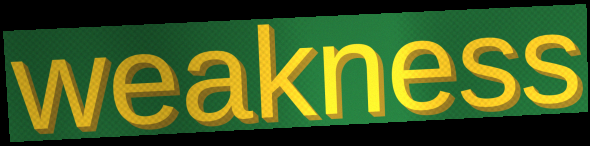
weakness